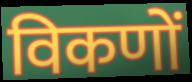
विकणों